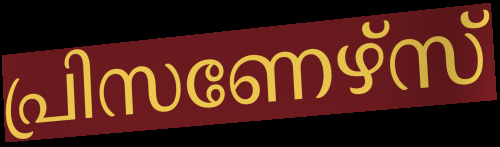
പ്രിസണേഴ്സ്